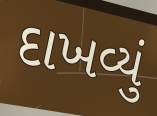
દાખવ્યું